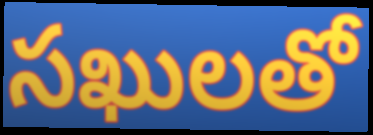
సఖులతో